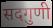
सदगुणी